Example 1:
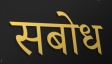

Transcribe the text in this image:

सबोध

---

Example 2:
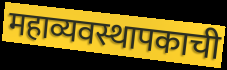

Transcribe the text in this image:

महाव्यवस्थापकाची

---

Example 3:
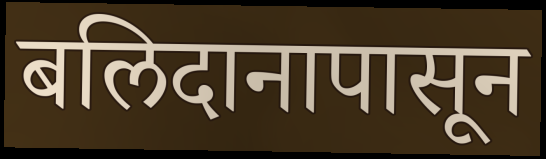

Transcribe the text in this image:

बलिदानापासून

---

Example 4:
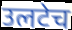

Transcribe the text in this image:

उलटेच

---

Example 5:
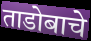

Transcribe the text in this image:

ताडोबाचे